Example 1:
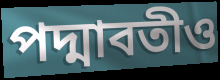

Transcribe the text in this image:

পদ্মাবতীও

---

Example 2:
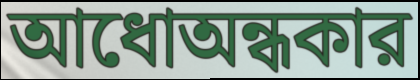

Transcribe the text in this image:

আধোঅন্ধকার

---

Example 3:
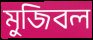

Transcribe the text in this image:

মুজিবল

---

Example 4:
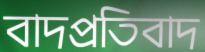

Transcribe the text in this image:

বাদপ্রতিবাদ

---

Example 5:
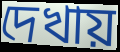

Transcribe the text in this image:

দেখায়